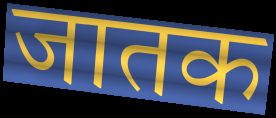
जातक